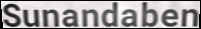
Sunandaben